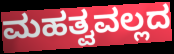
ಮಹತ್ವವಲ್ಲದ